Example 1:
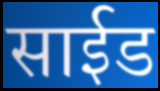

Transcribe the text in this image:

साईड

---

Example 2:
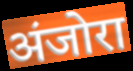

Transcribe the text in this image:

अंजोरा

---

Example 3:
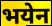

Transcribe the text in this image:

भयेन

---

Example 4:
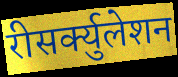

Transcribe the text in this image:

रीसर्क्युलेशन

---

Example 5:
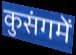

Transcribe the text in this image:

कुसंगमें